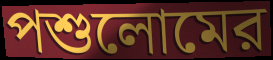
পশুলোমের